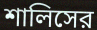
শালিসের